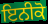
ਇਨੀਕੋ